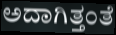
ಅದಾಗಿತ್ತಂತೆ